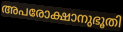
അപരോക്ഷാനുഭൂതി